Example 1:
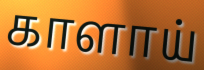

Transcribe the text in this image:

காளாய்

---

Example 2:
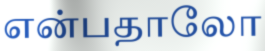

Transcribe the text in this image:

என்பதாலோ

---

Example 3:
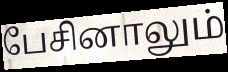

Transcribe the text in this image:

பேசினாலும்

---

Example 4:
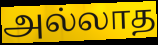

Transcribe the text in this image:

அல்லாத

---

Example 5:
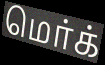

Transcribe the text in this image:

மெர்க்